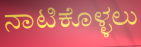
ನಾಟಿಕೊಳ್ಳಲು